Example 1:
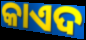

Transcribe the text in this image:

କାଏଦ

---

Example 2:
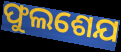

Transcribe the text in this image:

ଫୁଲଶେଯ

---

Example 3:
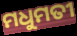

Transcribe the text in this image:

ମଧୁମତୀ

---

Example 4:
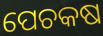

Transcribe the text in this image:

ପେଚକଷ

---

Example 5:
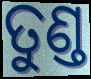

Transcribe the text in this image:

ତୁଣ୍ଡ